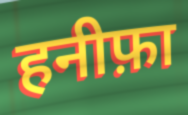
हनीफ़ा